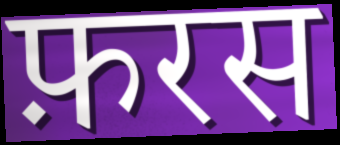
फ़रस